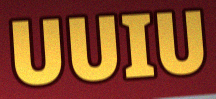
UUIU